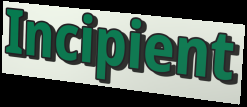
Incipient